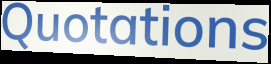
Quotations